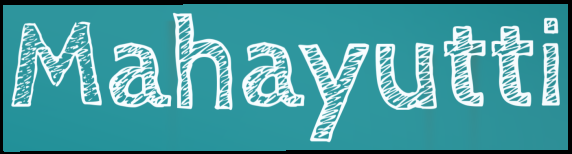
Mahayutti